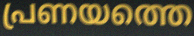
പ്രണയത്തെ